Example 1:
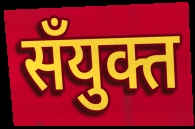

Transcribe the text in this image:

सँयुक्त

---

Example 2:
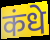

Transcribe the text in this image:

कंधे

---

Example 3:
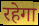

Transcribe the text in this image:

रहेगा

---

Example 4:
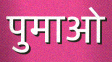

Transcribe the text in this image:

पुमाओ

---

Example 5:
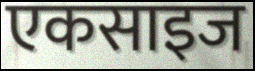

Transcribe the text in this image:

एकसाइज